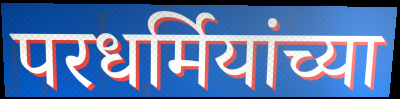
परधर्मियांच्या